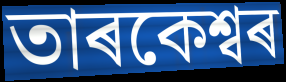
তাৰকেশ্বৰ